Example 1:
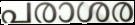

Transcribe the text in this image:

പരാശര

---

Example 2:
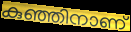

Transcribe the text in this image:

കുഞ്ഞിനാണ്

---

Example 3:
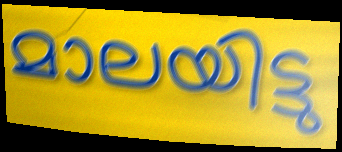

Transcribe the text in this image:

മാലയിട്ടു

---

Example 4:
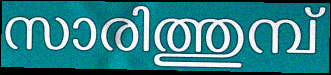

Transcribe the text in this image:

സാരിത്തുമ്പ്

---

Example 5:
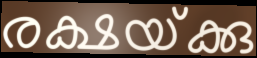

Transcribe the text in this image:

രക്ഷയ്‌ക്കു